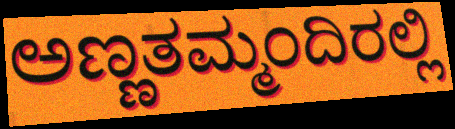
ಅಣ್ಣತಮ್ಮಂದಿರಲ್ಲಿ